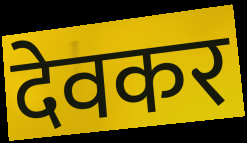
देवकर